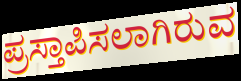
ಪ್ರಸ್ತಾಪಿಸಲಾಗಿರುವ